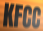
KFCC